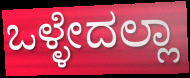
ಒಳ್ಳೇದಲ್ಲಾ